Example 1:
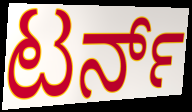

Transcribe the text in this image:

ಟರ್ನ್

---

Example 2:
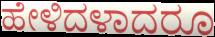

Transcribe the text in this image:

ಹೇಳಿದಳಾದರೂ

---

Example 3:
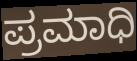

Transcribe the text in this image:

ಪ್ರಮಾಧಿ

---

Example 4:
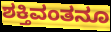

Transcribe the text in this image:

ಶಕ್ತಿವಂತನೂ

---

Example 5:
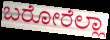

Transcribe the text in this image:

ಬರೋರೆಲ್ಲಾ